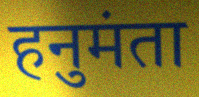
हनुमंता